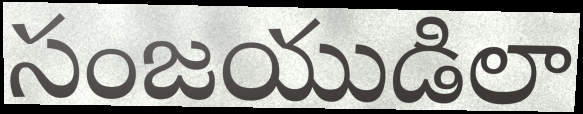
సంజయుడిలా